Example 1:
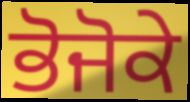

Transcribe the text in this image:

ਭੋਜੋਕੇ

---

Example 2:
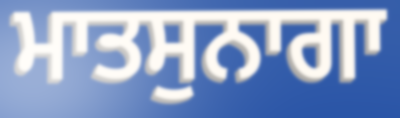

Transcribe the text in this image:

ਮਾਤਸੁਨਾਗਾ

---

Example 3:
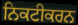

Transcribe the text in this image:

ਨਿਕਟੀਕਰਨ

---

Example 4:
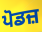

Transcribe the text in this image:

ਪੋਡਜ਼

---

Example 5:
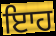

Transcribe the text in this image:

ਇਾਹ